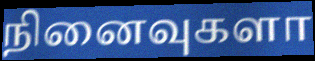
நினைவுகளா